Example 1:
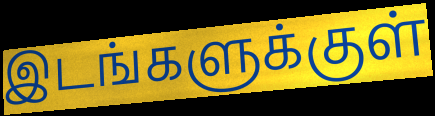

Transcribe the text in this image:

இடங்களுக்குள்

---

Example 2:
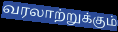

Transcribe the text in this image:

வரலாற்றுக்கும்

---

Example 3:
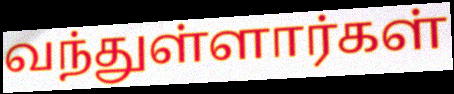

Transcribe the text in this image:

வந்துள்ளார்கள்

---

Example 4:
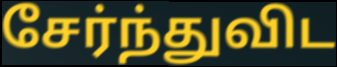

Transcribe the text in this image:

சேர்ந்துவிட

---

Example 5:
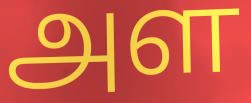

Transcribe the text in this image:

அள